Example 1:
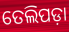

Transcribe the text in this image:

ତେଲିପଡ଼ା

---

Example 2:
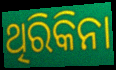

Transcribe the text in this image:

ଥିରିକିନା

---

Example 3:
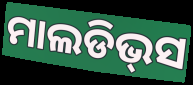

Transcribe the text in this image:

ମାଲଡିଭ୍‌ସ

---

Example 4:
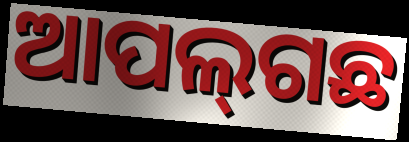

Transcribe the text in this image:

ଆପଲ୍‍ଗଛ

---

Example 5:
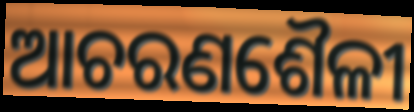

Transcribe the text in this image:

ଆଚରଣଶୈଳୀ